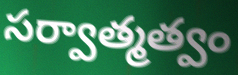
సర్వాత్మత్వం